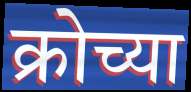
क्रोच्या